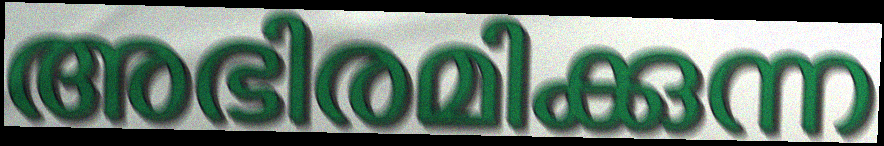
അഭിരമിക്കുന്ന